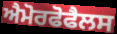
ਐਮੋਰਫੋਫੈਲਸ